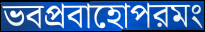
ভবপ্রবাহোপরমং